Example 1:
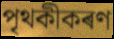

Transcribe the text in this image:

পৃথকীকৰণ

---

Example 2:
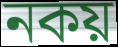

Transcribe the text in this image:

নকয়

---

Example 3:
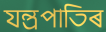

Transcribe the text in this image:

যন্ত্ৰপাতিৰ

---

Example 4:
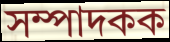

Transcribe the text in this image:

সম্পাদকক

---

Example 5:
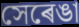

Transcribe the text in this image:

সেৰেঙা